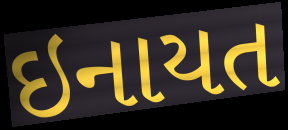
ઇનાયત